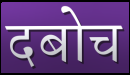
दबोच